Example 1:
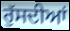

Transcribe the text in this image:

ਰੁੱਸਦੀਆਂ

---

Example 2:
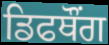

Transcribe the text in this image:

ਡਿਫਥੌਂਗ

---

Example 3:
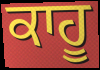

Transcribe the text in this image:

ਕਾਹੂ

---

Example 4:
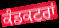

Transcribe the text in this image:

ਕੰਡਕਟਰਾਂ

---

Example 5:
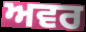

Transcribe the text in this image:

ਅਵਰ